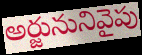
అర్జునునివైపు